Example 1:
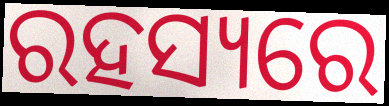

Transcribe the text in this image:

ରହସ୍ୟରେ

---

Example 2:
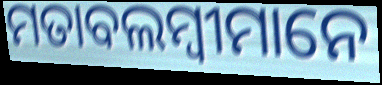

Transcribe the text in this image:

ମତାବଲମ୍ବୀମାନେ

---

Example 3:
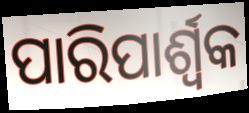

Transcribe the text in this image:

ପାରିପାର୍ଶ୍ବକ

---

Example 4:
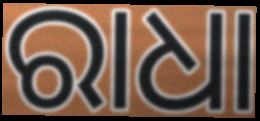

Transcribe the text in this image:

ରାଧା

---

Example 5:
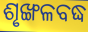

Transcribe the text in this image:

ଶୃଙ୍ଖଳବଦ୍ଧ